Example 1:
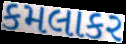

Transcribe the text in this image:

કમલાકર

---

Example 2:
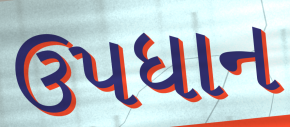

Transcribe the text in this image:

ઉપધાન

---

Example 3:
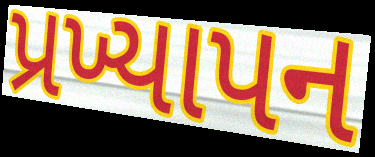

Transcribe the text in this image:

પ્રખ્યાપન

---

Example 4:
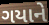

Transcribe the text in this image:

ગયાને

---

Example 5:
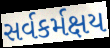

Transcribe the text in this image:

સર્વકર્મક્ષય